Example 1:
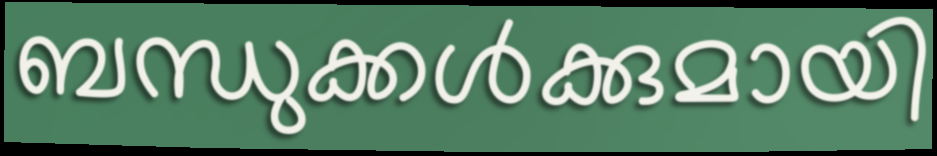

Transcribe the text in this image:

ബന്ധുക്കൾക്കുമായി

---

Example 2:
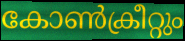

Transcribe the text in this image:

കോൺക്രീറ്റും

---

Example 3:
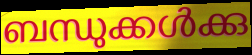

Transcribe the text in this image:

ബന്ധുക്കൾക്കു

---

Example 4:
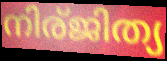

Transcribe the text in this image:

നിര്ജിത്യ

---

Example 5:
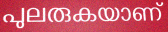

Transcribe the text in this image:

പുലരുകയാണ്